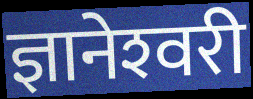
ज्ञानेश्‍वरी